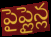
పైప్లైన్ల